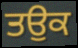
ਤਉਕ